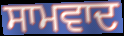
ਸਾਮਵਾਦ